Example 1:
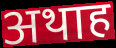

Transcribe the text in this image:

अथाह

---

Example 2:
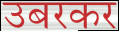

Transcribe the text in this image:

उबरकर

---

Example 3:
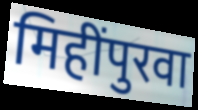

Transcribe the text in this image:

मिहींपुरवा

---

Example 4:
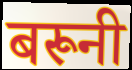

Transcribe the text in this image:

बरूनी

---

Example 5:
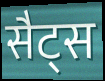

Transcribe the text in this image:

सैट्स